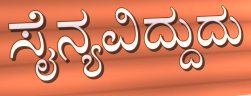
ಸೈನ್ಯವಿದ್ದುದು